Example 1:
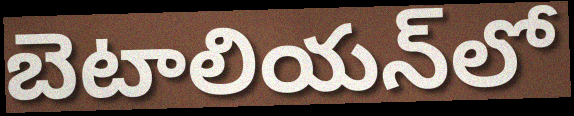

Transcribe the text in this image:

బెటాలియన్‌లో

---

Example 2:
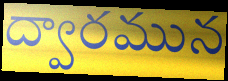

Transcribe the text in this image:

ద్వారమున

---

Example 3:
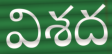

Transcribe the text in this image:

విశద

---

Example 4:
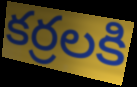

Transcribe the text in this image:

కర్రలకి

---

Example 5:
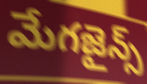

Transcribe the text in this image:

మేగజైన్స్